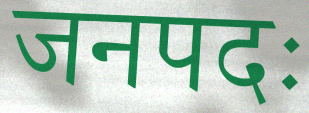
जनपदः